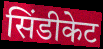
सिंडीकेट